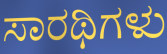
ಸಾರಥಿಗಳು